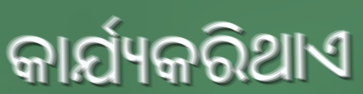
କାର୍ଯ୍ୟକରିଥାଏ